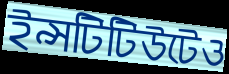
ইন্সটিটিউটেও